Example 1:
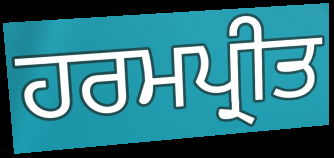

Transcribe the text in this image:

ਹਰਮਪ੍ਰੀਤ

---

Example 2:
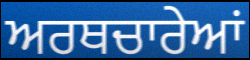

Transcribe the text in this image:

ਅਰਥਚਾਰੇਆਂ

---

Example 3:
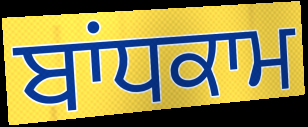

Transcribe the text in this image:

ਬਾਂਧਕਾਮ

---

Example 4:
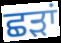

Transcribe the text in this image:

ਛੜਾਂ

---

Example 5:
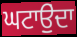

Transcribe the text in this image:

ਘਟਾਉੁਂਦਾ